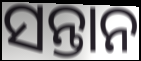
ସନ୍ତାନ